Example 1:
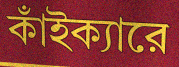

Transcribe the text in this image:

কাঁইক্যারে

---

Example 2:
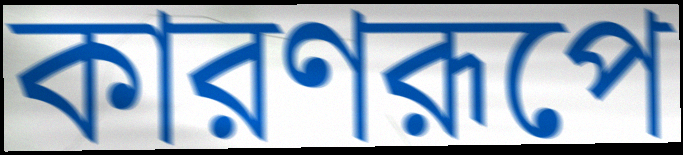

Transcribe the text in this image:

কারণরূপে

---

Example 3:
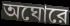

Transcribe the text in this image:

অঘোরে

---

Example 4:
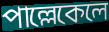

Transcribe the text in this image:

পাল্লেকেলে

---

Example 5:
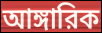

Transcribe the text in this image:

আঙ্গারিক